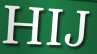
HIJ